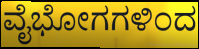
ವೈಭೋಗಗಳಿಂದ